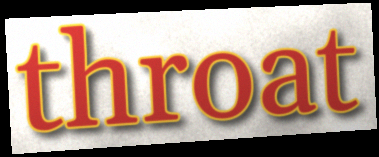
throat